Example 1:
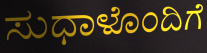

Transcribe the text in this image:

ಸುಧಾಳೊಂದಿಗೆ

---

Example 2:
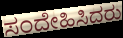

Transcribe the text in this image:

ಸಂದೇಹಿಸಿದರು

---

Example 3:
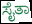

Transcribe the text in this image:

ಸೈತಾ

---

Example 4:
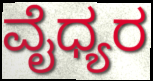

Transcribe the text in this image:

ವೈಧ್ಯರ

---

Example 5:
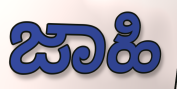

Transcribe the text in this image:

ಜಾಹಿ